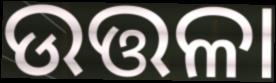
ଉତ୍ତଳା